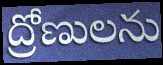
ద్రోణులను